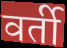
वर्ती